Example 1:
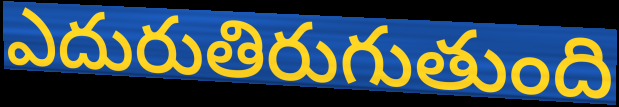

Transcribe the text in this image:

ఎదురుతిరుగుతుంది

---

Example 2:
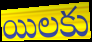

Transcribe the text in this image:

యిలకు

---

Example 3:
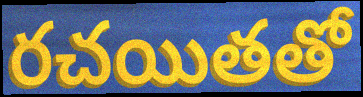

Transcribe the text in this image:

రచయితతో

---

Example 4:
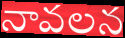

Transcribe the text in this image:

నావలన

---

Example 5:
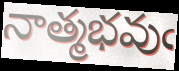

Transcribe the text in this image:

నాత్మభవుఁ